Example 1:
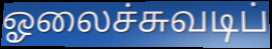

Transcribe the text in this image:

ஓலைச்சுவடிப்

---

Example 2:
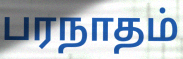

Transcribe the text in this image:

பரநாதம்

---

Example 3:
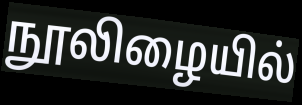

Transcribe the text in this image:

நூலிழையில்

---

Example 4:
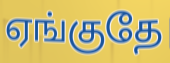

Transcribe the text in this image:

ஏங்குதே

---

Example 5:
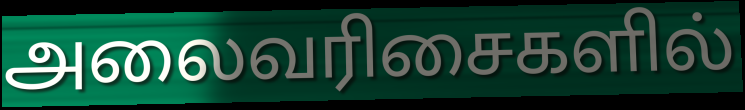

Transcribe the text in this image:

அலைவரிசைகளில்